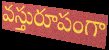
వస్తురూపంగా